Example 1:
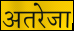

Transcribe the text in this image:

अतरेजा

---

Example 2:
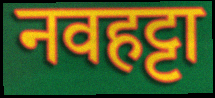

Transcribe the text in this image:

नवहट्टा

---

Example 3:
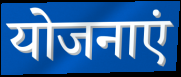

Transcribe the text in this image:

योजनाएं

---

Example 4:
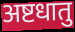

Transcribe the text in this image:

अष्टधातु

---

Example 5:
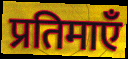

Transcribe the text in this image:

प्रतिमाएँ